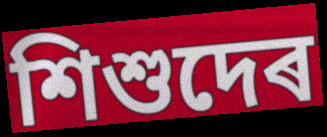
শিশুদেৰ